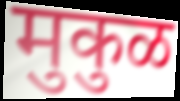
मुकुळ